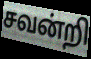
சவன்றி